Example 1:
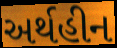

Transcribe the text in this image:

અર્થહીન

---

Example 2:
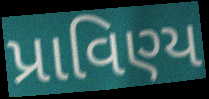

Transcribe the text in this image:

પ્રાવિણ્ય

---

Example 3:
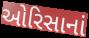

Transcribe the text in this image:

ઓરિસાનાં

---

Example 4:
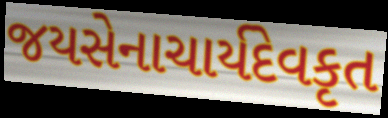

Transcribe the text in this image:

જયસેનાચાર્યદેવકૃત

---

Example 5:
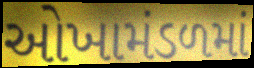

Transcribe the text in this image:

ઓખામંડળમાં